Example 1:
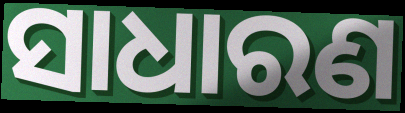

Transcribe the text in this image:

ସାଧାରଣ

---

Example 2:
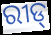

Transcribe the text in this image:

ରୀଡ୍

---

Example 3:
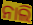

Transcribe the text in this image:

ନାଲି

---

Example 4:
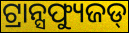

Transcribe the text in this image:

ଟ୍ରାନ୍ସଫ୍ୟୁଜଡ୍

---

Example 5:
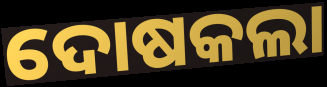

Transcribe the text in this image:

ଦୋଷକଲା